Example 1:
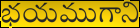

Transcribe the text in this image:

భయముగాని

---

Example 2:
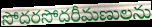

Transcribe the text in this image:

సోదరసోదరీమణులను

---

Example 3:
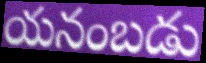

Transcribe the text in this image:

యనంబడు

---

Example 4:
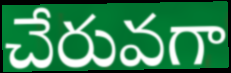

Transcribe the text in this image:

చేరువగా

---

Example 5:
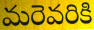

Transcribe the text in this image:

మరెవరికి